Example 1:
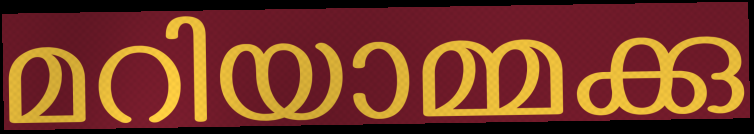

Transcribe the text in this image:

മറിയാമ്മക്കു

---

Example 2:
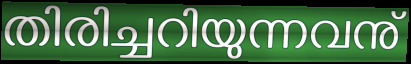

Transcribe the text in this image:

തിരിച്ചറിയുന്നവനു്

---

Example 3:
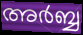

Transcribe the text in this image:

അർബ്ബ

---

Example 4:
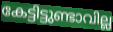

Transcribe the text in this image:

കേട്ടിട്ടുണ്ടാവില്ല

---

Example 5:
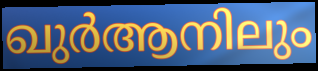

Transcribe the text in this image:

ഖുർആനിലും